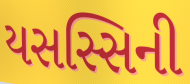
યસસ્સિની